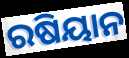
ରଷିୟାନ